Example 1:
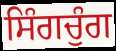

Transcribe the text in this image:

ਸਿੰਗਚੁੰਗ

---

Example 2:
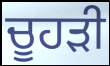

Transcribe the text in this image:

ਚੂਹੜੀ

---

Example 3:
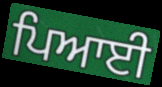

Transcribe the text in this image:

ਪਿਆਈ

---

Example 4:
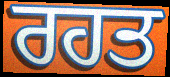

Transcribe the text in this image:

ਰਹਤ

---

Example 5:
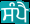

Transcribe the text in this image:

ਸੰਪੈ